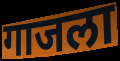
गाजला